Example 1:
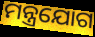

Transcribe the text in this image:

ମନ୍ତ୍ରଯୋଗ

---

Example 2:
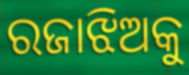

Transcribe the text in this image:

ରଜାଝିଅକୁ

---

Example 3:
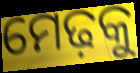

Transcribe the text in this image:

ମେଢ଼କୁ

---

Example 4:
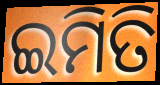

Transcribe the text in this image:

ଇମିତି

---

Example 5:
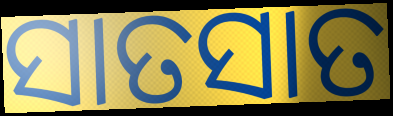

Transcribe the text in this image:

ସାତସାତ